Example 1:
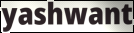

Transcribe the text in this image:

yashwant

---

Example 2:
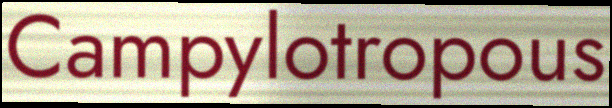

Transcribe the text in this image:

Campylotropous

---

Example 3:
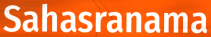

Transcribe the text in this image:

Sahasranama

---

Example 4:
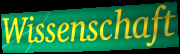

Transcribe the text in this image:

Wissenschaft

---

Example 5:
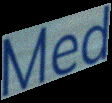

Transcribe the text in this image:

Med